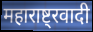
महाराष्ट्रवादी